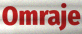
Omraje